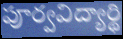
పూర్వవిద్యార్థి